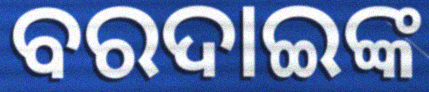
ବରଦାଇଙ୍କ